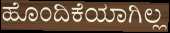
ಹೊಂದಿಕೆಯಾಗಿಲ್ಲ